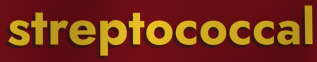
streptococcal